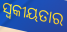
ସ୍ୱକୀୟତାର